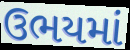
ઉભયમાં